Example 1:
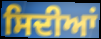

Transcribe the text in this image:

ਸਿਦੀਆਂ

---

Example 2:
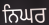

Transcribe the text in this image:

ਨਿਘਰ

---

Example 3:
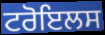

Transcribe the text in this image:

ਟਰੋਇਲਸ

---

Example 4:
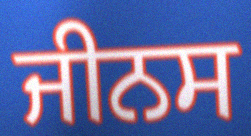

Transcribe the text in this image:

ਜੀਨਸ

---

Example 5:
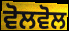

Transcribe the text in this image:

ਵੋਲਵੋਲ